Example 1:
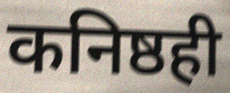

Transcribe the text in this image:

कनिष्ठही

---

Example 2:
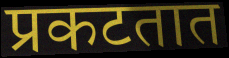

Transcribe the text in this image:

प्रकटतात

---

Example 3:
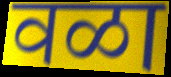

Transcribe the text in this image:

वळा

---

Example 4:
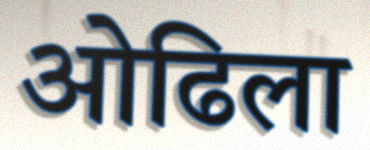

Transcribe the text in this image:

ओढिला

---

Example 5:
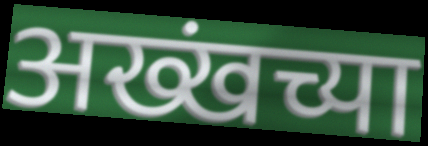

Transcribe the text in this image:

अख्खंच्या